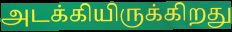
அடக்கியிருக்கிறது